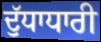
ਦੁੱਧਾਧਾਰੀ